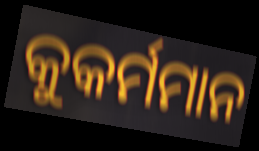
କୁକର୍ମମାନ